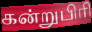
கன்றுபிரி